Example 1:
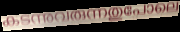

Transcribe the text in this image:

കടന്നുവരുന്നതുപോലെ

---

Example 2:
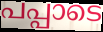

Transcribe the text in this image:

പപ്പാടെ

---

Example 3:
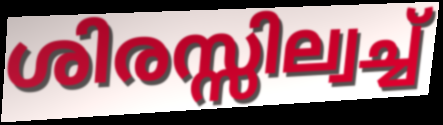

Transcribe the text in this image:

ശിരസ്സില്വച്ച്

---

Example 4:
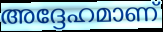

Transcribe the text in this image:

അദ്ദേഹമാണ്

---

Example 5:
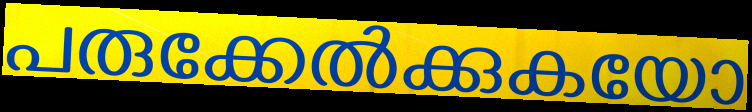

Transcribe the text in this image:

പരുക്കേൽക്കുകയോ